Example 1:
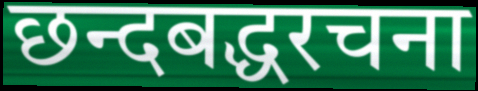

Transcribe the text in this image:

छन्दबद्धरचना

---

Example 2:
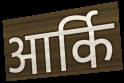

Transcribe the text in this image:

आर्कि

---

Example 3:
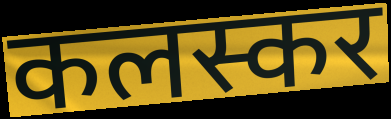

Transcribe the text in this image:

कलस्कर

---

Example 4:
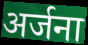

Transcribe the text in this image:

अर्जना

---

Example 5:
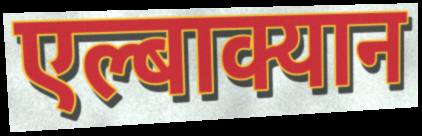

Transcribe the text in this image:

एल्बाक्यान